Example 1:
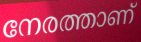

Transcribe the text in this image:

നേരത്താണ്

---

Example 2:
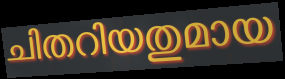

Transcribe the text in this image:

ചിതറിയതുമായ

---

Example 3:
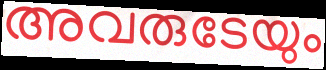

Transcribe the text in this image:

അവരുടേയും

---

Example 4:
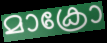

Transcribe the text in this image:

മാക്രോ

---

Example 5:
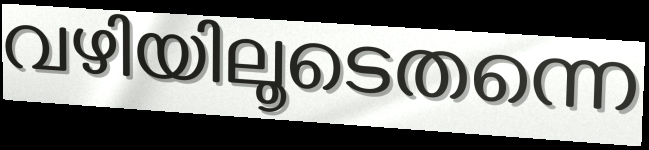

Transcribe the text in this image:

വഴിയിലൂടെതന്നെ